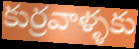
కుర్రవాళ్ళకు